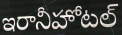
ఇరానీహోటల్